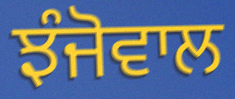
ਝੰਜੋਵਾਲ